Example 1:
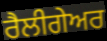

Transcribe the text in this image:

ਰੈਲੀਗੇਅਰ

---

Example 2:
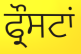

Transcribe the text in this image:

ਫ੍ਰੌਸਟਾਂ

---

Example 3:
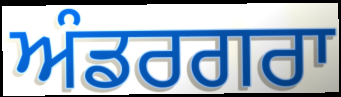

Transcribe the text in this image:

ਅੰਡਰਗਰਾ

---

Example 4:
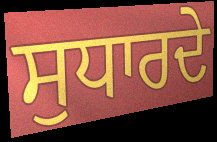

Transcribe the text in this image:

ਸੁਧਾਰਦੇ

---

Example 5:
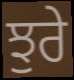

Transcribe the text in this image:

ਝੁਰੇ